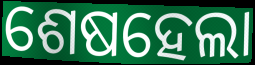
ଶେଷହେଲା